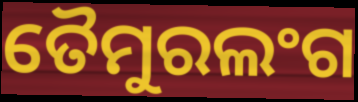
ତୈମୁରଲଂଗ